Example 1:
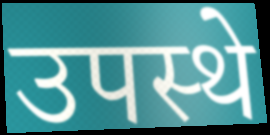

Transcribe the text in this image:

उपस्थे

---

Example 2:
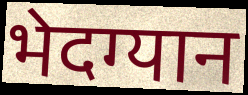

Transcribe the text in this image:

भेदग्यान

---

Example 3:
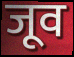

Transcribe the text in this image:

जूव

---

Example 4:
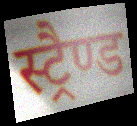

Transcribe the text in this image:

स्ट्रैण्ड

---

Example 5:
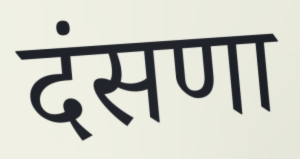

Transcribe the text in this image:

दंसणा